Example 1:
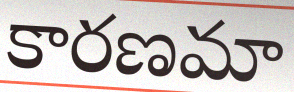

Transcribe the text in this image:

కారణమా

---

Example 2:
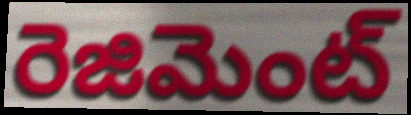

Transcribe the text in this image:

రెజిమెంట్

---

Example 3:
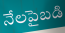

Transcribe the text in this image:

నేలపైబడి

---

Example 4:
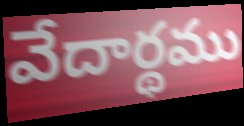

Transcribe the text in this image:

వేదార్థము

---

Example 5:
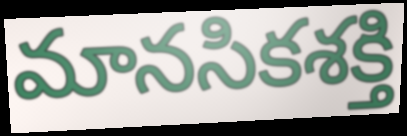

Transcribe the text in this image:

మానసికశక్తి